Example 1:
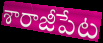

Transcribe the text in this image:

శారాజీపేట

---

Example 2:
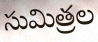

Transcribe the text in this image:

సుమిత్రల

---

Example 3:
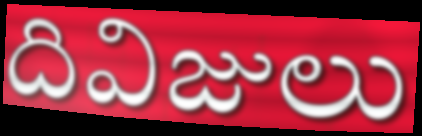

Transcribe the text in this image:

దివిజులు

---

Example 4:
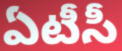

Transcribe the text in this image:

ఏటీసీ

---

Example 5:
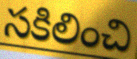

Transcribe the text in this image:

సకిలించి